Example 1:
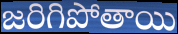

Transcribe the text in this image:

జరిగిపోతాయి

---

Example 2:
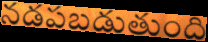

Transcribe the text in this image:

నడపబడుతుంది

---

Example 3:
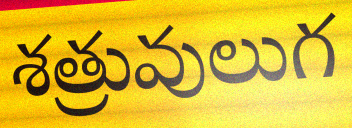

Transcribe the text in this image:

శత్రువులుగ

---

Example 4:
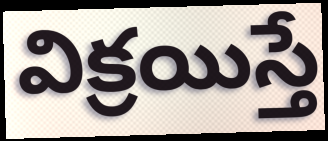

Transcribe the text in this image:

విక్రయిస్తే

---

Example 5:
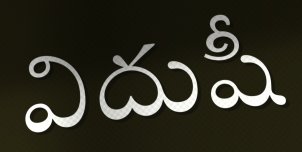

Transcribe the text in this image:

విదుషీ